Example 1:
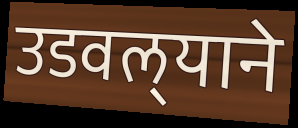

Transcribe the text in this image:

उडवल्याने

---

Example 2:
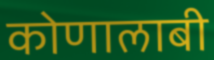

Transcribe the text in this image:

कोणालाबी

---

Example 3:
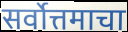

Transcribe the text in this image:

सर्वोत्तमाचा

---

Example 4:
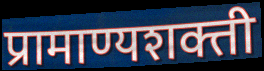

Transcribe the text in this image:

प्रामाण्यशक्ती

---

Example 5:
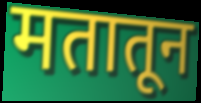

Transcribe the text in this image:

मतातून